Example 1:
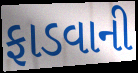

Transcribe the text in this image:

ફાડવાની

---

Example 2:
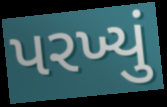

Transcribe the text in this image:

પરખ્યું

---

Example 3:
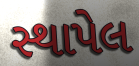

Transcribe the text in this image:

સ્થાપેલ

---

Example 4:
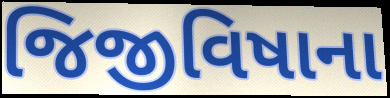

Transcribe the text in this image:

જિજીવિષાના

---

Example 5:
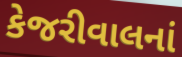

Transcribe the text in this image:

કેજરીવાલનાં